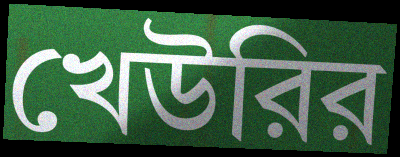
খেউরির